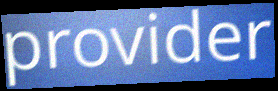
provider